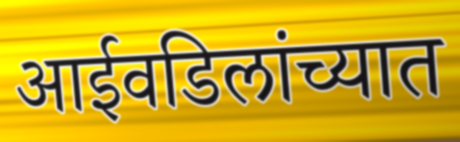
आईवडिलांच्यात